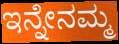
ಇನ್ನೇನಮ್ಮ